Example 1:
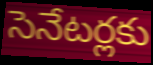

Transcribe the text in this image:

సెనేటర్లకు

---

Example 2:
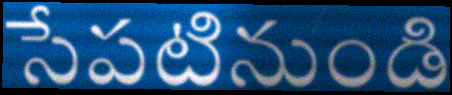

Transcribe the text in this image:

సేపటినుండి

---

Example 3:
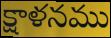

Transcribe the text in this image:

క్షాళనము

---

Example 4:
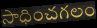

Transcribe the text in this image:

సాధించగలం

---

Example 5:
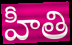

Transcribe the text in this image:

హీతి